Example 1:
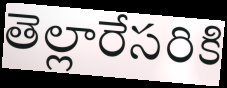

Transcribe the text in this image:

తెల్లారేసరికి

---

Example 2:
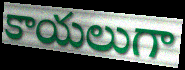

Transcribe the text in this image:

కాయలుగా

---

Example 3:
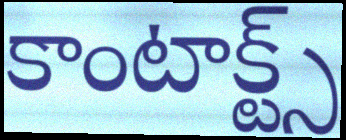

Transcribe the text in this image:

కాంటాక్ట్స్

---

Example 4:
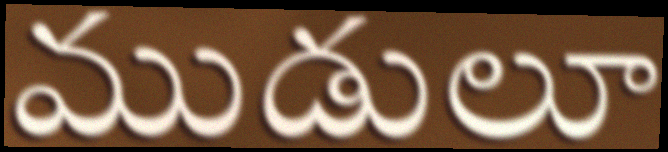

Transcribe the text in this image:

ముడులూ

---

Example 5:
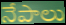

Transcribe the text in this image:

నేపాలు